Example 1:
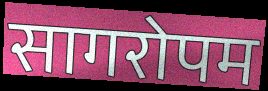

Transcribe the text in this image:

सागरोपम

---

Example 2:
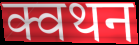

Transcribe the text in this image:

क्वथन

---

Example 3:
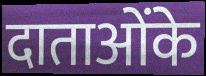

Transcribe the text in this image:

दाताओंके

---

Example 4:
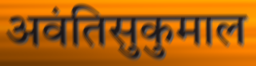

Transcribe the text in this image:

अवंतिसुकुमाल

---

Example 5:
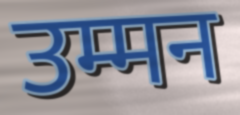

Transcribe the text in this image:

उम्मन